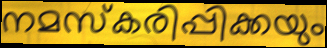
നമസ്കരിപ്പിക്കയും